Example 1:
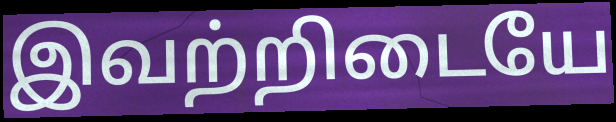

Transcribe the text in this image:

இவற்றிடையே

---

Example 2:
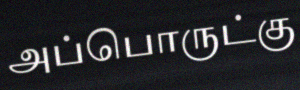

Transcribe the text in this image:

அப்பொருட்கு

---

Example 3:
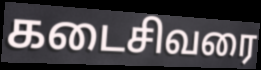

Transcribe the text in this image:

கடைசிவரை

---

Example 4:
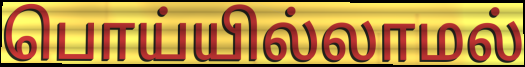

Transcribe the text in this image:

பொய்யில்லாமல்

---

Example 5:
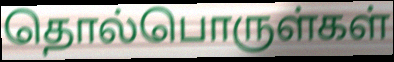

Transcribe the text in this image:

தொல்பொருள்கள்